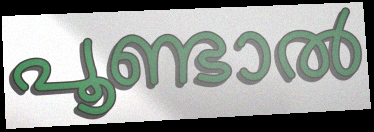
പൂണ്ടാൽ